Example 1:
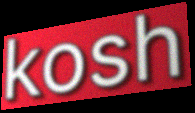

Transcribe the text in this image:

kosh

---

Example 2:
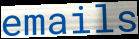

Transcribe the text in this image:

emails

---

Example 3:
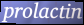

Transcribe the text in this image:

prolactin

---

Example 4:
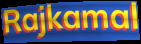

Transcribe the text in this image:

Rajkamal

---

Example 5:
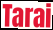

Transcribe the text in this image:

Tarai